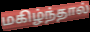
மகிழ்ந்தால்